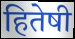
हितेषी